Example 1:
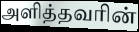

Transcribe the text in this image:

அளித்தவரின்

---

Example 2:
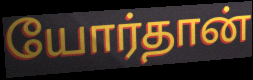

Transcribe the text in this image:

யோர்தான்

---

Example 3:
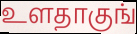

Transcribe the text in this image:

உளதாகுங்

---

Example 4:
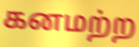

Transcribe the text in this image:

கனமற்ற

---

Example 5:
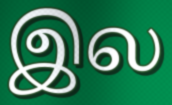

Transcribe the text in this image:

இல